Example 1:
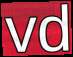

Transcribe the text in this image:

vd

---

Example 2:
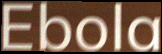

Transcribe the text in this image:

Ebola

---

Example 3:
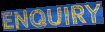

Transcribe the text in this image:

ENQUIRY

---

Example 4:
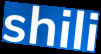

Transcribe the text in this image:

shili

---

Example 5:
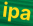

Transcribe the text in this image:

ipa